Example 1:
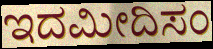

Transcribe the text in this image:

ಇದಮೀದಿಸಂ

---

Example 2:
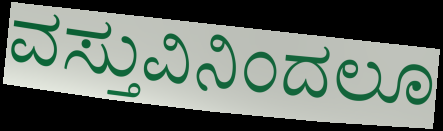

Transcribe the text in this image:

ವಸ್ತುವಿನಿಂದಲೂ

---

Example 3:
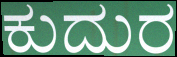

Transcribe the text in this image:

ಕುದುರ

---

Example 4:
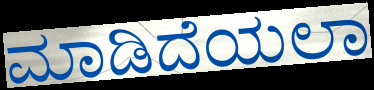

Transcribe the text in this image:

ಮಾಡಿದೆಯಲಾ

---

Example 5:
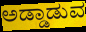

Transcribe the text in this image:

ಅಡ್ಡಾಡುವ